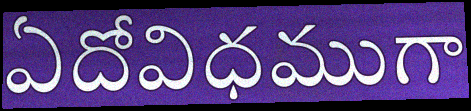
ఏదోవిధముగా